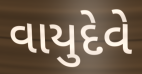
વાયુદેવે